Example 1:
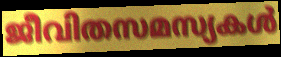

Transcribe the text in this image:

ജീവിതസമസ്യകൾ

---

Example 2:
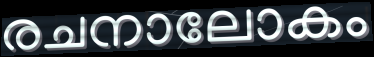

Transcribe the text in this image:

രചനാലോകം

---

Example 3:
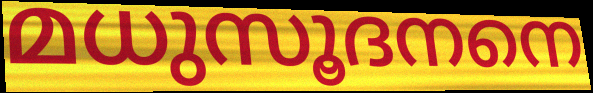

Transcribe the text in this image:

മധുസൂദനനെ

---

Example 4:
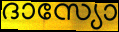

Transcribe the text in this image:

ദാസ്യോ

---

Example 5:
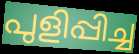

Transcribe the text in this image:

പുളിപ്പിച്ച